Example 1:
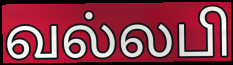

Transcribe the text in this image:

வல்லபி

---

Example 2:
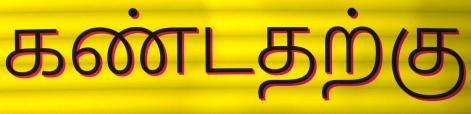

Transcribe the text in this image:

கண்டதற்கு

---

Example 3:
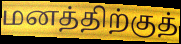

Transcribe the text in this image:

மனத்திற்குத்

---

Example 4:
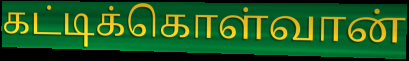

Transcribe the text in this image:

கட்டிக்கொள்வான்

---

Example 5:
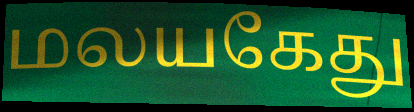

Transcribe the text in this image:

மலயகேது